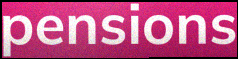
pensions